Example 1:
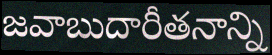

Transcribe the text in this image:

జవాబుదారీతనాన్ని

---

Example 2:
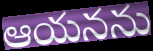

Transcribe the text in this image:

ఆయనను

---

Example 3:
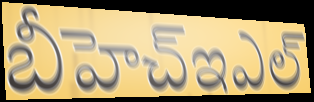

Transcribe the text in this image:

బీహెచ్ఇఎల్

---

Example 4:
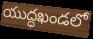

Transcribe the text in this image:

యుద్ధఖండలో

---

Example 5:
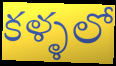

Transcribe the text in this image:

కళ్ళలో